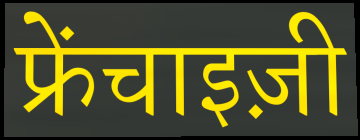
फ्रेंचाइज़ी